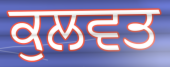
ਕੁਲਵਤ